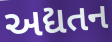
અદ્યતન